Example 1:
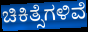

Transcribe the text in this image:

ಚಿಕಿತ್ಸೆಗಳಿವೆ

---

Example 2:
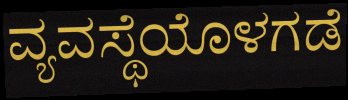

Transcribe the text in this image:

ವ್ಯವಸ್ಥೆಯೊಳಗಡೆ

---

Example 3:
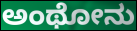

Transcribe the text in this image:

ಅಂಥೋನು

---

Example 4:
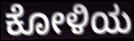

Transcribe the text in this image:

ಕೋಳಿಯ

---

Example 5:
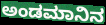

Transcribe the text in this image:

ಅಂಡಮಾನಿನ